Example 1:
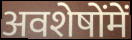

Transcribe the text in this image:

अवशेषोंमें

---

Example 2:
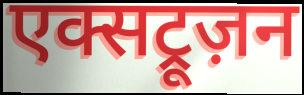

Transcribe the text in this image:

एक्सट्रूज़न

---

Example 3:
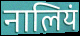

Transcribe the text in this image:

नालियं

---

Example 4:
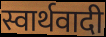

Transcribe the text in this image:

स्वार्थवादी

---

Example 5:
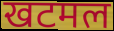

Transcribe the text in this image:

खटमल